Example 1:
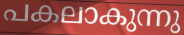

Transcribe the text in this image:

പകലാകുന്നു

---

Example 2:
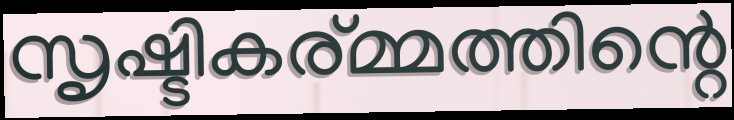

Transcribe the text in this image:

സൃഷ്ടികര്മ്മത്തിന്റെ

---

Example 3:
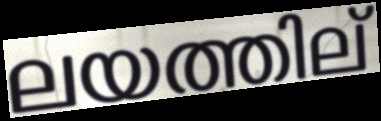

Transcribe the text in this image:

ലയത്തില്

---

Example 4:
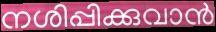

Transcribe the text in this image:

നശിപ്പിക്കുവാൻ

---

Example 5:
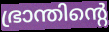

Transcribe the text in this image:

ഭ്രാന്തിന്റെ